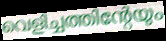
വെളിച്ചത്തിന്റേയും